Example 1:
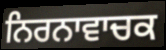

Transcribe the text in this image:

ਨਿਰਨਾਵਾਚਕ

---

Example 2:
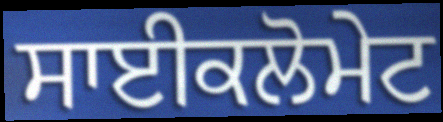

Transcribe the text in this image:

ਸਾਈਕਲੋਮੇਟ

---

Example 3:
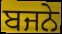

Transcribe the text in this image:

ਬਜਨੇ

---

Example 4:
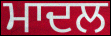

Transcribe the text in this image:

ਮਾਦਲ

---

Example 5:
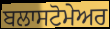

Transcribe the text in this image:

ਬਲਾਸਟੋਮੇਅਰ